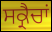
ਸਕ੍ਰੈਚਾਂ